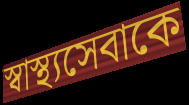
স্বাস্থ্যসেবাকে